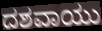
ದಶವಾಯು